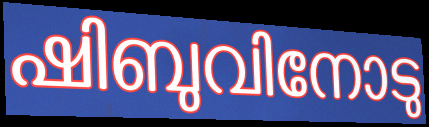
ഷിബുവിനോടു